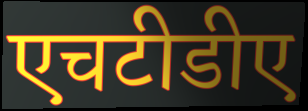
एचटीडीए